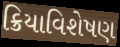
ક્રિયાવિશેષણ